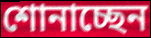
শোনাচ্ছেন